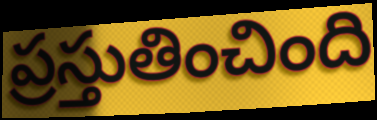
ప్రస్తుతించింది